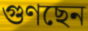
গুণছেন